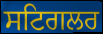
ਸਟਿਗਲਰ